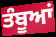
ਤੰਬੂਆਂ